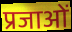
प्रजाओं